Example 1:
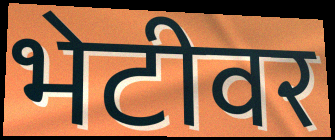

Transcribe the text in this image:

भेटीवर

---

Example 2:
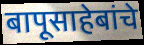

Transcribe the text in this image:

बापूसाहेबांचे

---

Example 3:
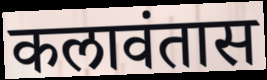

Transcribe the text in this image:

कलावंतास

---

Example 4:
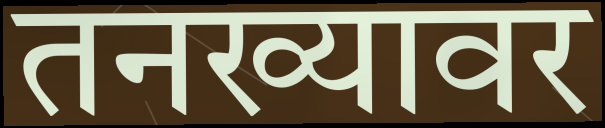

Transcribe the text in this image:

तनख्यावर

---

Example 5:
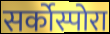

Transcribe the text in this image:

सर्कोस्पोरा